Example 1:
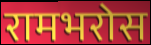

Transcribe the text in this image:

रामभरोस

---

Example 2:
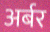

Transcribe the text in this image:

अर्बर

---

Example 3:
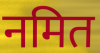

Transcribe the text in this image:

नमित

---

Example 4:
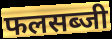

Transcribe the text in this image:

फलसब्जी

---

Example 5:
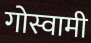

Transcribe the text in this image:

गोस्वामी